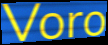
Voro